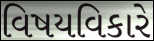
વિષયવિકારે